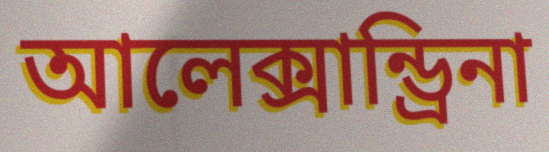
আলেক্সান্ড্রিনা